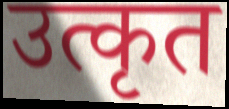
उत्कृत